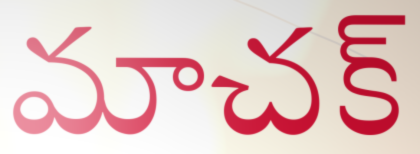
మాచక్